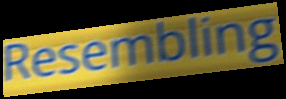
Resembling